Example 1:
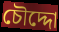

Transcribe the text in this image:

চৌদ্দো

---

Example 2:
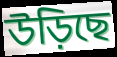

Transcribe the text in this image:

উড়িছে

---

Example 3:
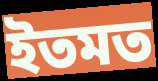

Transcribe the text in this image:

ইতমত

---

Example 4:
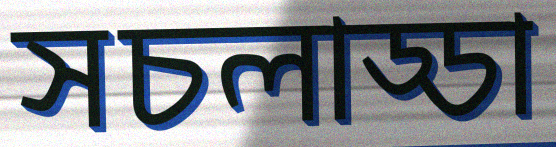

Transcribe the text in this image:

সচলাড্ডা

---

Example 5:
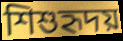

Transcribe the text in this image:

শিশুহৃদয়